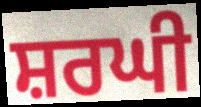
ਸ਼ਰਘੀ